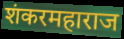
शंकरमहाराज